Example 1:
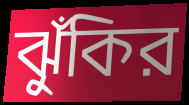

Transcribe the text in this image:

ঝুঁকির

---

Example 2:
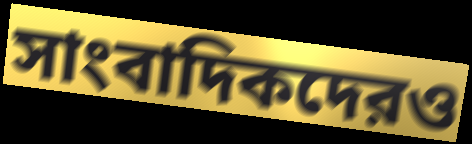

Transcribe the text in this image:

সাংবাদিকদেরও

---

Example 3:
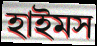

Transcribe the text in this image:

হাইমস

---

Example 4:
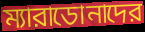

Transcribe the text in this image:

ম্যারাডোনাদের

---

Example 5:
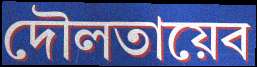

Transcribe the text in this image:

দৌলতায়েব